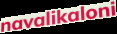
navalikaloni